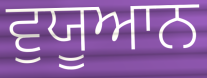
ਵੁਯੂਆਨ